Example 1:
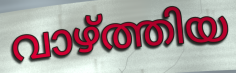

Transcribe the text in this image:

വാഴ്ത്തിയ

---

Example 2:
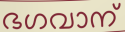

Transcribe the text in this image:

ഭഗവാന്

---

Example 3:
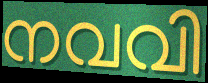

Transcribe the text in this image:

നവവി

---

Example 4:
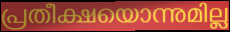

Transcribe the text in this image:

പ്രതീക്ഷയൊന്നുമില്ല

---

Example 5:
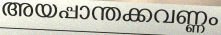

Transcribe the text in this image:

അയപ്പാന്തക്കവണ്ണം